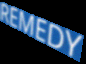
REMEDY